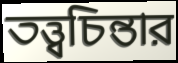
তত্ত্বচিন্তার